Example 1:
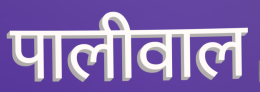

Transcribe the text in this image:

पालीवाल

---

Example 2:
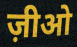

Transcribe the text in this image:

ज़ीओ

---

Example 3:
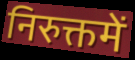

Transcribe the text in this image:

निरुक्तमें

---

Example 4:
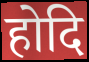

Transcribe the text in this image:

होदि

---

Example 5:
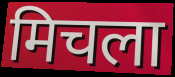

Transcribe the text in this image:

मिचला